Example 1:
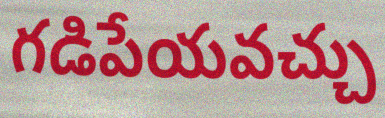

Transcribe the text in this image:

గడిపేయవచ్చు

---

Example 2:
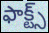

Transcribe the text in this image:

ఫాక్ట్స్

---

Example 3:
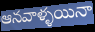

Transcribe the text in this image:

ఆనవాళ్ళయినా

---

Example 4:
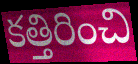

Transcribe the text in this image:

కత్తిరించి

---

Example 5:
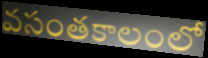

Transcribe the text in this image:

వసంతకాలంలో